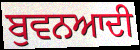
ਬੁਵਨਆਦੀ